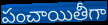
పంచాయితీగా